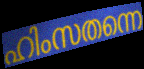
ഹിംസതന്നെ